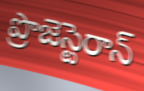
ప్రొజెస్టెరాన్